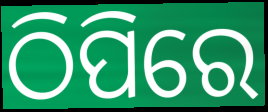
ଠିପିରେ